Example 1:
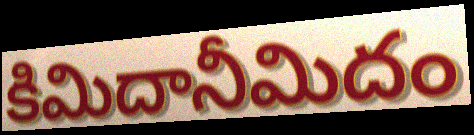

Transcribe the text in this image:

కిమిదానీమిదం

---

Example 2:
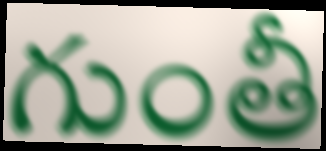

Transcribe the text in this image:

గుంతీ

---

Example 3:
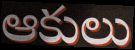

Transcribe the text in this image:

ఆకులు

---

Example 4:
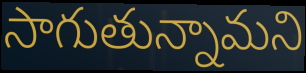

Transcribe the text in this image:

సాగుతున్నామని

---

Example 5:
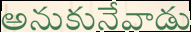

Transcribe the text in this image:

అనుకునేవాడు